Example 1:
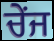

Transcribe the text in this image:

ਚੇਂਜ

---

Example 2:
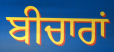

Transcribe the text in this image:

ਬੀਚਾਰਾਂ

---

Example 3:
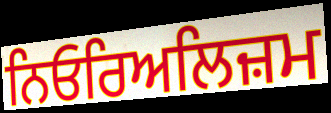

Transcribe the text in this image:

ਨਿਓਰਿਅਲਿਜ਼ਮ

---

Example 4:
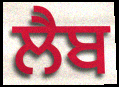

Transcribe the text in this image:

ਲੈਬ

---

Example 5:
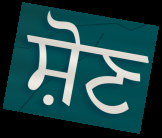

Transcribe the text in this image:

ਸ਼ੋਣ